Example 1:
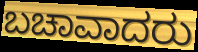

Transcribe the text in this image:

ಬಚಾವಾದರು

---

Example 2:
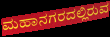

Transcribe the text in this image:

ಮಹಾನಗರದಲ್ಲಿರುವ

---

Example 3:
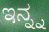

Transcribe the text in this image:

ಇನ್ನ್ನ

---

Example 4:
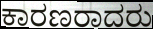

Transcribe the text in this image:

ಕಾರಣರಾದರು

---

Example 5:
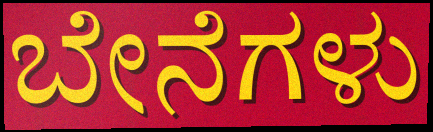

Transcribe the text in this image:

ಬೇನೆಗಳು